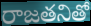
రాజతనితో